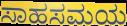
ಸಾಹಸಮಯ